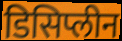
डिसिप्लीन